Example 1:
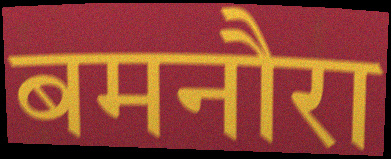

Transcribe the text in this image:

बमनौरा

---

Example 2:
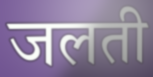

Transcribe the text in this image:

जलती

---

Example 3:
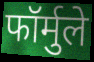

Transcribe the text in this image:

फॉर्मुले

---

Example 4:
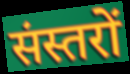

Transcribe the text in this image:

संस्तरों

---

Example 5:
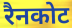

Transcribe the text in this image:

रैनकोट